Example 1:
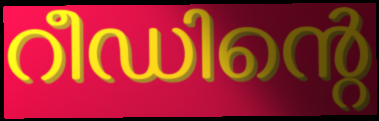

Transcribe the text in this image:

റീഡിന്റെ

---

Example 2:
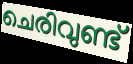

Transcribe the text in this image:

ചെരിവുണ്ട്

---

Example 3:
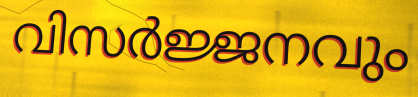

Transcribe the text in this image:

വിസർജ്ജനവും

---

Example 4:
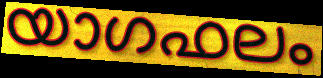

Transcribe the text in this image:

യാഗഫലം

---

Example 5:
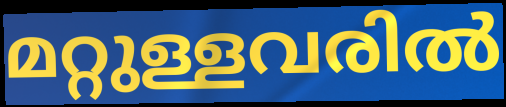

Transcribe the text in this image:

മറ്റുള്ളവരിൽ